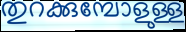
തുറക്കുമ്പോളുള്ള